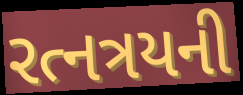
રત્નત્રયની